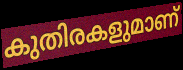
കുതിരകളുമാണ്